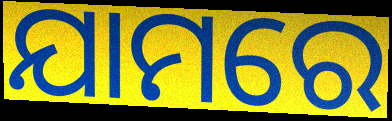
ଯାମରେ